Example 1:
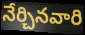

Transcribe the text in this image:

నేర్చినవారి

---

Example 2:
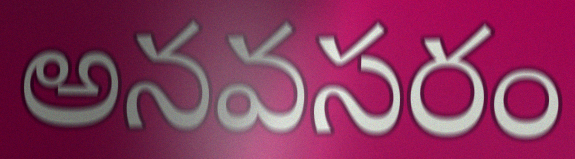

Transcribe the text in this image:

అనవసరం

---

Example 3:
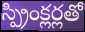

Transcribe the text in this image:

స్ప్రింక్లర్లతో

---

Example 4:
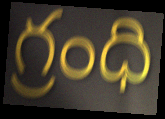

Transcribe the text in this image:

గ్రంధి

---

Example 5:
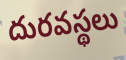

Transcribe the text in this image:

దురవస్థలు